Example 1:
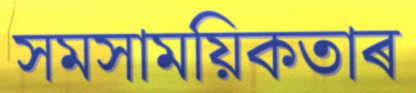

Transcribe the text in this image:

সমসাময়িকতাৰ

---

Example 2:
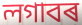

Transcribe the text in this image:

লগাবৰ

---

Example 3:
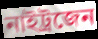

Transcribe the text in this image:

নাইট্ৰজেন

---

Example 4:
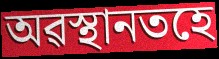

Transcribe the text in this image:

অৱস্থানতহে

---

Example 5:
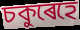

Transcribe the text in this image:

চকুৰেহে